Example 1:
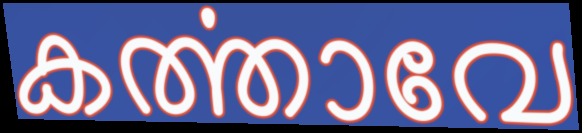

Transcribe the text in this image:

കൎത്താവേ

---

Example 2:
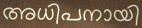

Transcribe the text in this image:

അധിപനായി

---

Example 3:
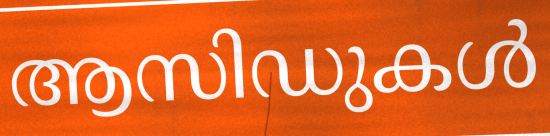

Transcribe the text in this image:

ആസിഡുകൾ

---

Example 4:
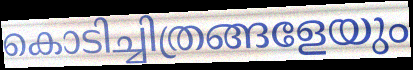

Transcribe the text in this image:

കൊടിച്ചിത്രങ്ങളേയും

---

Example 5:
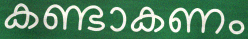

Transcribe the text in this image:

കണ്ടാകണം